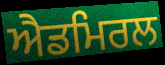
ਐਡਮਿਰਲ